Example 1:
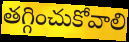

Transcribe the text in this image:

తగ్గించుకోవాలి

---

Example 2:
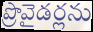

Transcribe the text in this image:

ప్రొవైడర్లను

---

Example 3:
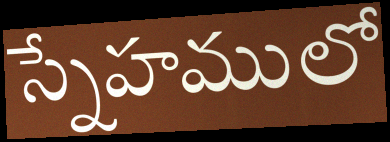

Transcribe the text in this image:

స్నేహములో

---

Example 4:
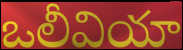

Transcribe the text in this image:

ఒలీవియా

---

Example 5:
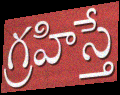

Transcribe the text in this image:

గ్రహిస్తే